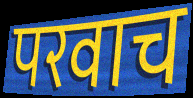
परवाच